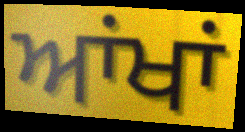
ਆਂਖਾਂ